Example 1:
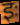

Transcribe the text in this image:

इः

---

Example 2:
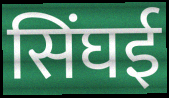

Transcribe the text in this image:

सिंघई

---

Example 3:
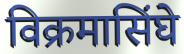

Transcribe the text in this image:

विक्रमासिंघे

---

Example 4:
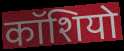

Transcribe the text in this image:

कॉशियो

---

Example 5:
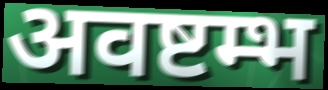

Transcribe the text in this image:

अवष्टम्भ